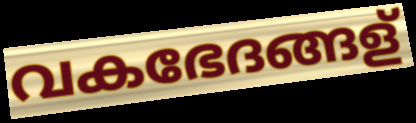
വകഭേദങ്ങള്